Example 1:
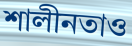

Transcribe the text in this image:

শালীনতাও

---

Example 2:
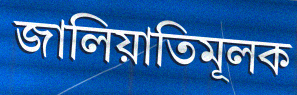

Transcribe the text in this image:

জালিয়াতিমূলক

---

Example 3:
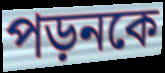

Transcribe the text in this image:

পড়নকে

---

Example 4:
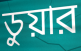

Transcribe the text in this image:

ডুয়ার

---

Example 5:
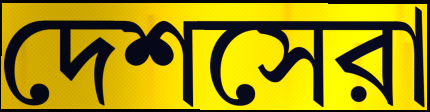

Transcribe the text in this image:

দেশসেরা